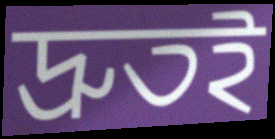
দ্রুতই